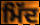
ਮਿੱਦ